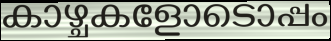
കാഴ്ചകളോടൊപ്പം